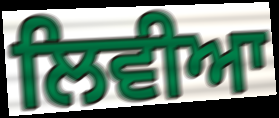
ਲਿਵੀਆ